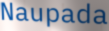
Naupada